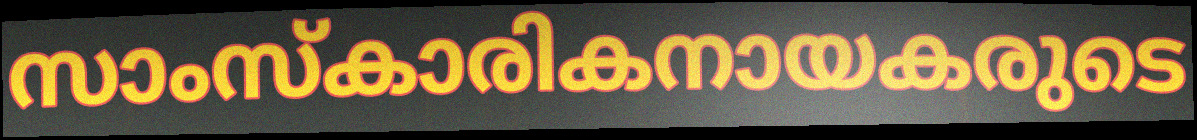
സാംസ്കാരികനായകരുടെ